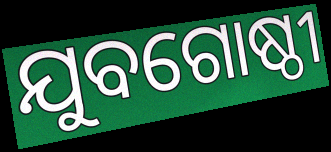
ଯୁବଗୋଷ୍ଠୀ